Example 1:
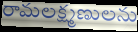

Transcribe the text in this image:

రామలక్ష్మణులను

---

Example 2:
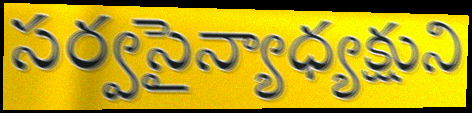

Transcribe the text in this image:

సర్వసైన్యాధ్యక్షుని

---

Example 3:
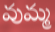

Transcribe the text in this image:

వుమ్మ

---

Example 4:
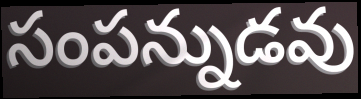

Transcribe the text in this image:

సంపన్నుడవు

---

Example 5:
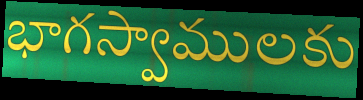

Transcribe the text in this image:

భాగస్వాములకు